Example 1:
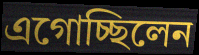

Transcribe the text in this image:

এগোচ্ছিলেন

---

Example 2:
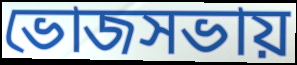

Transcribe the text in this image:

ভোজসভায়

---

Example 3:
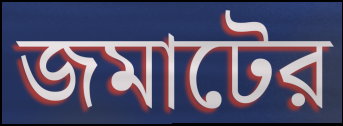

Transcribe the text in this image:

জমাটের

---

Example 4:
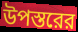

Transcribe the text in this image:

উপস্তরের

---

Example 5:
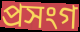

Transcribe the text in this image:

প্রসংগ